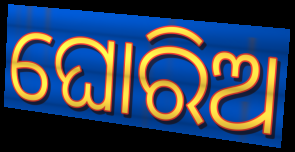
ଘୋରିଅ